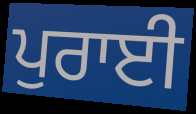
ਪੁਰਾਈ